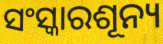
ସଂସ୍କାରଶୂନ୍ୟ